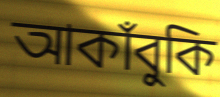
আকাঁবুকি